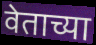
वेताच्या